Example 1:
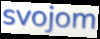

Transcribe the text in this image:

svojom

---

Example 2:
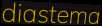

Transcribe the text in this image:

diastema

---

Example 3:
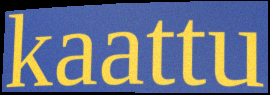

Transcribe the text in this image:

kaattu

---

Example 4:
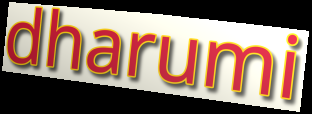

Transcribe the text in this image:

dharumi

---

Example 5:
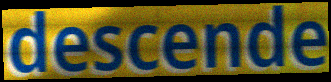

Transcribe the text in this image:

descende